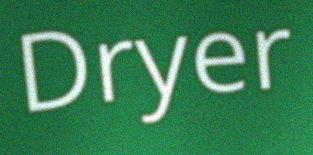
Dryer